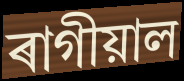
ৰাগীয়াল